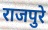
राजपुरे